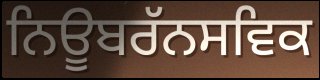
ਨਿਊਬਰੱਨਸਵਿਕ